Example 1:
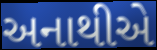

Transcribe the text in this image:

અનાથીએ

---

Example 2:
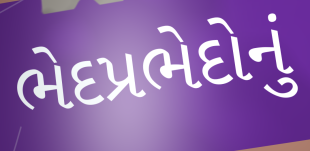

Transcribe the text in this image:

ભેદપ્રભેદોનું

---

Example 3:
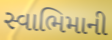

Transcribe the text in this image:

સ્વાભિમાની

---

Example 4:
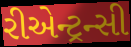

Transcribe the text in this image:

રીએન્ટ્રન્સી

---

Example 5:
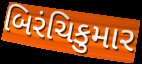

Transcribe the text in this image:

બિરંચિકુમાર